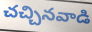
చచ్చినవాడి